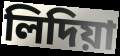
লিদিয়া